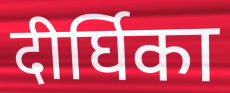
दीर्घिका